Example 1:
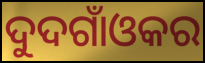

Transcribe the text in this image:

ଦୁଦଗାଁଓକର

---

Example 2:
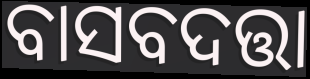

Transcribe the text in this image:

ବାସବଦତ୍ତା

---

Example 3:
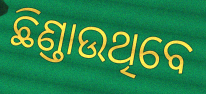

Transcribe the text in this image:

ଛିଣ୍ଡାଉଥିବେ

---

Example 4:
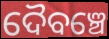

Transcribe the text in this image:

ଦୈବଞ୍ଚେ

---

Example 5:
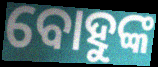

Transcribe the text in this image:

ବୋହୁଙ୍କ